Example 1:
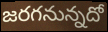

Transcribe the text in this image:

జరగనున్నదో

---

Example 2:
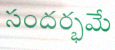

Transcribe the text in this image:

సందర్భమే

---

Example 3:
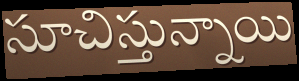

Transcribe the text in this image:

సూచిస్తున్నాయి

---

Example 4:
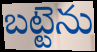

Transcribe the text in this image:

బట్టెను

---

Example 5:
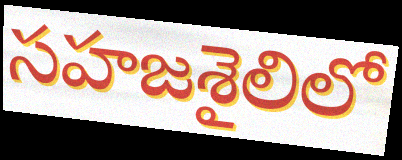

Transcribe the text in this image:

సహజశైలిలో